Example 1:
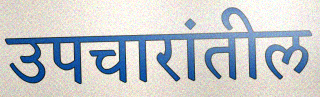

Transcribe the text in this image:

उपचारांतील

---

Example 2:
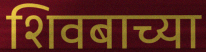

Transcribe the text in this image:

शिवबाच्या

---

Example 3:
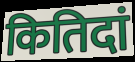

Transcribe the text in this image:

कितिदां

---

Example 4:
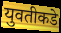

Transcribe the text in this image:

युवतीकडे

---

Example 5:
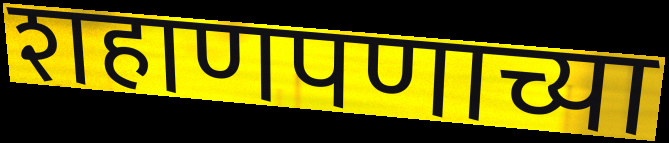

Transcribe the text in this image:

शहाणपणाच्या